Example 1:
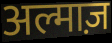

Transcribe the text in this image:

अल्माज़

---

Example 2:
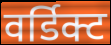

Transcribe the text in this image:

वर्डिक्ट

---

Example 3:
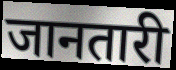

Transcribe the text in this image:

जानतारी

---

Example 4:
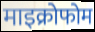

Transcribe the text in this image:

माइक्रोफोम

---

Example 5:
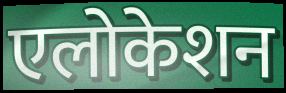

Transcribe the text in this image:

एलोकेशन